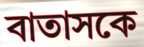
বাতাসকে